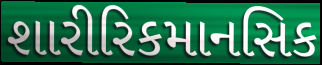
શારીરિકમાનસિક